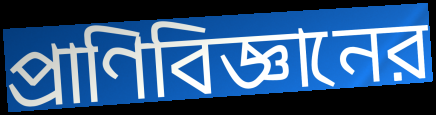
প্রাণিবিজ্ঞানের